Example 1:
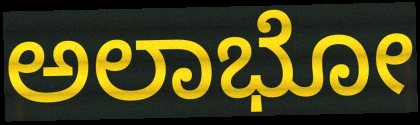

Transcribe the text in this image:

ಅಲಾಭೋ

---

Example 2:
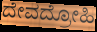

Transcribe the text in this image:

ದೇವದ್ರೋಹಿ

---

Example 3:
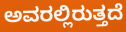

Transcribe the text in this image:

ಅವರಲ್ಲಿರುತ್ತದೆ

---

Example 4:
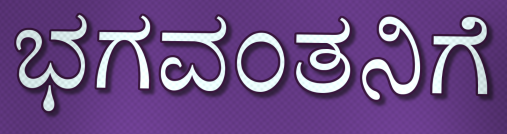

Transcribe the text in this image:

ಭಗವಂತನಿಗೆ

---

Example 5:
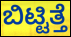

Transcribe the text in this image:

ಬಿಟ್ಟಿತ್ತೆ